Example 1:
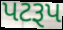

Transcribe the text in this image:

પટરૂપ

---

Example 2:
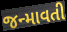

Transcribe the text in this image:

જન્માવતી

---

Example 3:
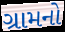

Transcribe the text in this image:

ગ્રામનો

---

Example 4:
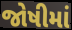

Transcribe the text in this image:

જોષીમાં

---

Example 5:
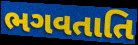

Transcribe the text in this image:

ભગવતાતિ